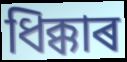
ধিক্কাৰ